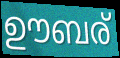
ഊബര്